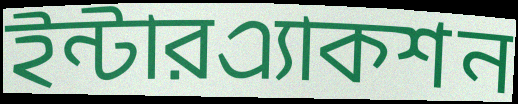
ইন্টারএ্যাকশন